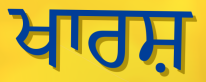
ਖਾਰਸ਼